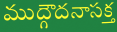
ముద్గౌదనాసక్త